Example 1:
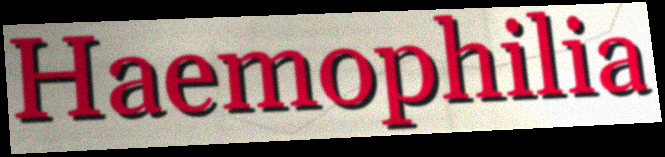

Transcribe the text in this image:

Haemophilia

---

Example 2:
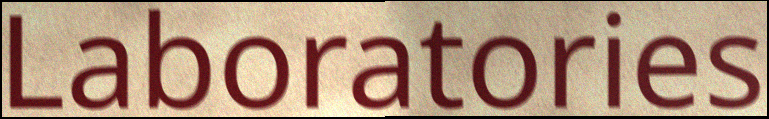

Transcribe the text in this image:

Laboratories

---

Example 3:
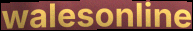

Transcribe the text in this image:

walesonline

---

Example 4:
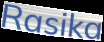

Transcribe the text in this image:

Rasika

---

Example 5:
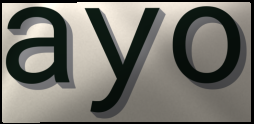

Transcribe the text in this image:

ayo